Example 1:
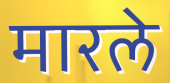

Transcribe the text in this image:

मारले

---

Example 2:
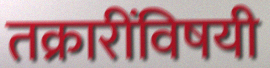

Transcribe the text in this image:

तक्रारींविषयी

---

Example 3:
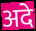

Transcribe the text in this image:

अदे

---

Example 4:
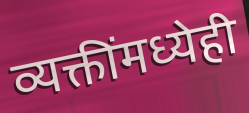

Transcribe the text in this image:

व्यक्तींमध्येही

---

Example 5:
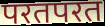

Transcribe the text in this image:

परतपरत